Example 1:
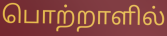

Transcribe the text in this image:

பொற்றாளில்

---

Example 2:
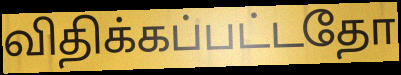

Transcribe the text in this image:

விதிக்கப்பட்டதோ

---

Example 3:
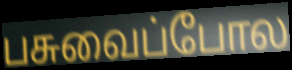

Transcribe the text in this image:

பசுவைப்போல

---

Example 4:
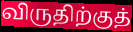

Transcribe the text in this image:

விருதிற்குத்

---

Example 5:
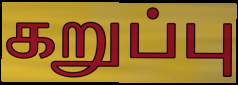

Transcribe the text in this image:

கறுப்பு